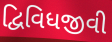
દ્વિવિધજીવી